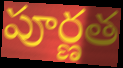
పూర్ణత